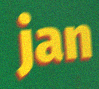
jan